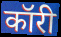
कॉरी